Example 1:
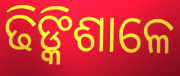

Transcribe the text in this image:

ଢିଙ୍କିଶାଳେ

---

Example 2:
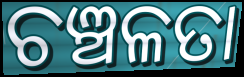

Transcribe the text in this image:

ଚଞ୍ଚଳତା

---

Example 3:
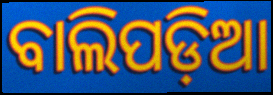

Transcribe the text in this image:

ବାଲିପଡ଼ିଆ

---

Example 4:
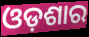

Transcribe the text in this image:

ଓଡ଼ଶାର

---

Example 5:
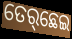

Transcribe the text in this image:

ତେର୍‌ଛେଇ